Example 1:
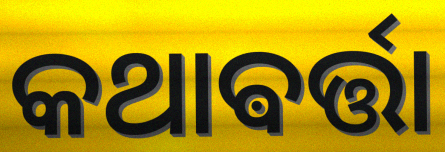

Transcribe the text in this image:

କଥାଵର୍ତ୍ତା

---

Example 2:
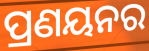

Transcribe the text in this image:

ପ୍ରଣୟନର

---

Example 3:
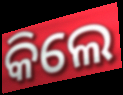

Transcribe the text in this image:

କିଲେ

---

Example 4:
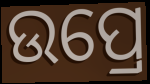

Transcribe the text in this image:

ଉପ୍ରେ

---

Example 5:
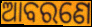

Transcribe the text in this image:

ଆବରଣେ